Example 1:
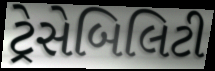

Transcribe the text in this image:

ટ્રેસેબિલિટી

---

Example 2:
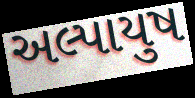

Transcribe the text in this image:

અલ્પાયુષ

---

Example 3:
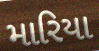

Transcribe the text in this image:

મારિયા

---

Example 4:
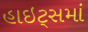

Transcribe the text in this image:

હાઇટ્સમાં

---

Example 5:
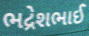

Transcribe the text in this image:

ભદ્રેશભાઈ